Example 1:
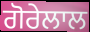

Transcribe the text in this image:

ਗੋਰੇਲਾਲ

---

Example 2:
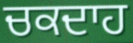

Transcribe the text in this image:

ਚਕਦਾਹ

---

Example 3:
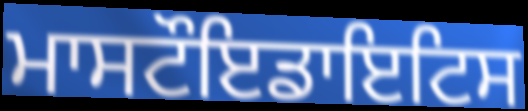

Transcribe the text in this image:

ਮਾਸਟੌਇਡਾਇਟਿਸ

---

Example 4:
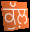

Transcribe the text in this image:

ਕੁੱਲ਼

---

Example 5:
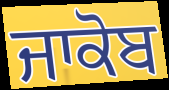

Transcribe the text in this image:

ਜਾਕੋਬ